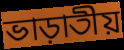
ভাড়াতীয়